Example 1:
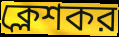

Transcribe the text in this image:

ক্লেশকর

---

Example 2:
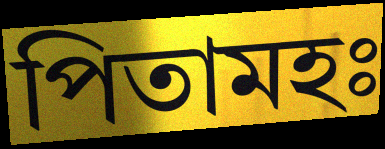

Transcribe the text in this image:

পিতামহঃ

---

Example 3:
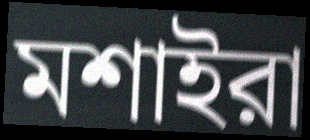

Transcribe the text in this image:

মশাইরা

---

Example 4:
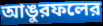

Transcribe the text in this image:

আঙুরফলের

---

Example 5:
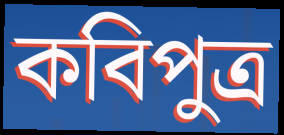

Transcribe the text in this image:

কবিপুত্র